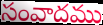
సంవాదము